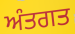
ਅੰਤਗਤ